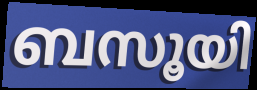
ബസൂയി